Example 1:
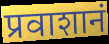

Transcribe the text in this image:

प्रवाशानं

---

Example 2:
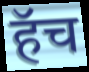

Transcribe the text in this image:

हॅच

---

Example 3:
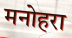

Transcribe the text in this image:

मनोहरा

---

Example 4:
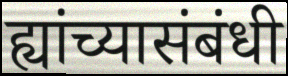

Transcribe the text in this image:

ह्यांच्यासंबंधी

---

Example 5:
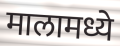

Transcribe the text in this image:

मालामध्ये